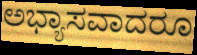
ಅಭ್ಯಾಸವಾದರೂ